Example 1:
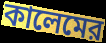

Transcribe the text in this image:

কালেমের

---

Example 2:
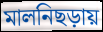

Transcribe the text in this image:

মালনিছড়ায়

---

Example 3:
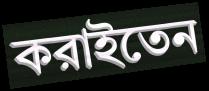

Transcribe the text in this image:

করাইতেন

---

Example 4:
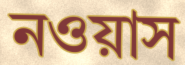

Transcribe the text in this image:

নওয়াস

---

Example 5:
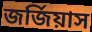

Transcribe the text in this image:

জর্জিয়াস